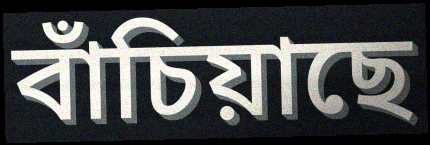
বাঁচিয়াছে